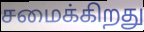
சமைக்கிறது